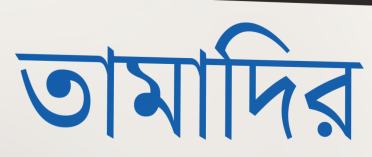
তামাদির